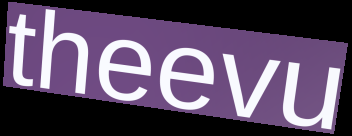
theevu